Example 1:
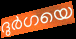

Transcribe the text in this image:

ദുർഗയെ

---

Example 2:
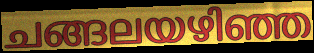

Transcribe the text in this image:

ചങ്ങലയഴിഞ്ഞ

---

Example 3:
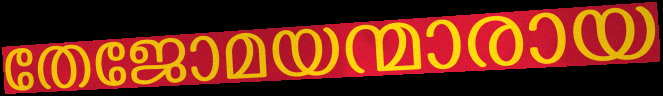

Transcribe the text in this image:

തേജോമയന്മാരായ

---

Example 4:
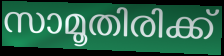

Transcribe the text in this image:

സാമൂതിരിക്ക്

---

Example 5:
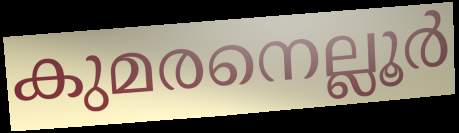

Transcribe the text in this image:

കുമരനെല്ലൂർ